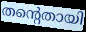
തന്റെതായി